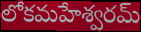
లోకమహేశ్వరమ్